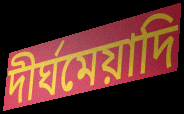
দীর্ঘমেয়াদি